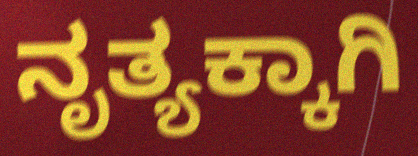
ನೃತ್ಯಕ್ಕಾಗಿ